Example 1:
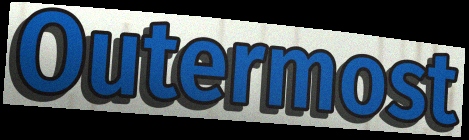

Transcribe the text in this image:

Outermost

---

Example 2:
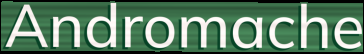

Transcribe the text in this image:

Andromache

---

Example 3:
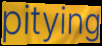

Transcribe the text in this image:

pitying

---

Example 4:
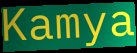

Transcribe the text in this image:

Kamya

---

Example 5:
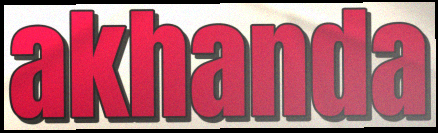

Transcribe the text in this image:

akhanda